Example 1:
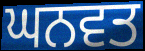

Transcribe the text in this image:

ਘਨਵਤ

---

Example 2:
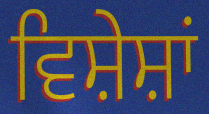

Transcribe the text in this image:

ਵਿਸ਼ੇਸ਼ਾਂ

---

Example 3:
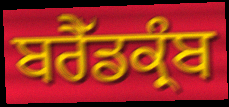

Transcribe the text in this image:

ਬਰੈੱਡਕ੍ਰੰਬ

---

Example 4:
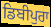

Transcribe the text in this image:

ਡਿਬੀਪੁਰਾ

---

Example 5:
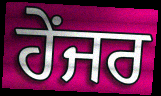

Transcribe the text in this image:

ਹੇਂਜਰ